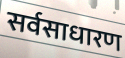
सर्वसाधारण